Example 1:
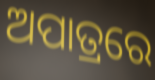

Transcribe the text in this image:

ଅପାତ୍ରରେ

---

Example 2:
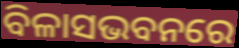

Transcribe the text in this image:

ବିଳାସଭବନରେ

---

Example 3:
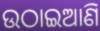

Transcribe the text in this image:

ଉଠାଇଆଣି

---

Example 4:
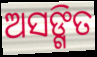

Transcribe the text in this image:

ଅସଙ୍ଗିତ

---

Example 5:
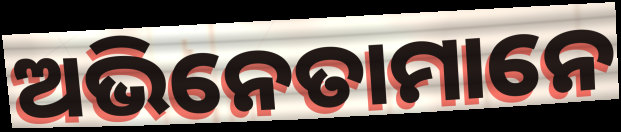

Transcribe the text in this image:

ଅଭିନେତାମାନେ